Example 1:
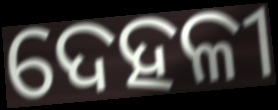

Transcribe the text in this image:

ଦେହଳୀ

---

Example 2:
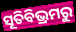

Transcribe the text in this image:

ସୂତିବିଭ୍ରମରୁ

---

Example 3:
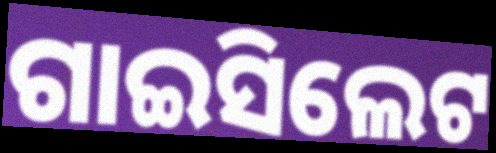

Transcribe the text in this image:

ଗାଇସିଲେଟ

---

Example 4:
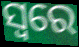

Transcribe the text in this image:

ସ୍ୱରେ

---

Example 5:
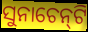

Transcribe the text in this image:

ସୁନାଚେନ୍‍ଟି